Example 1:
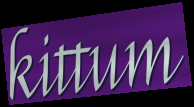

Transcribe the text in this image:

kittum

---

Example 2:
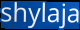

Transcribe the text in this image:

shylaja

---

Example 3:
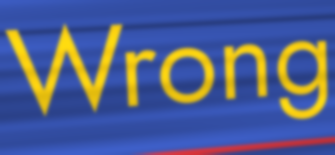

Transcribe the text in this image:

Wrong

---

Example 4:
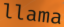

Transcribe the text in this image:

llama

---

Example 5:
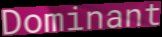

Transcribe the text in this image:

Dominant